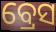
ବ୍ରେସ